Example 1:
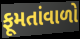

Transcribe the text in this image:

ફૂમતાંવાળો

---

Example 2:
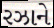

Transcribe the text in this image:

રઝાને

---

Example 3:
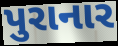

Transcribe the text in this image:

પુરાનાર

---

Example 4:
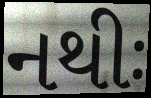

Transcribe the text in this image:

નથીઃ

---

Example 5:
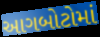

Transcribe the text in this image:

આગબોટોમાં